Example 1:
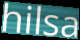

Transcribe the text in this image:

hilsa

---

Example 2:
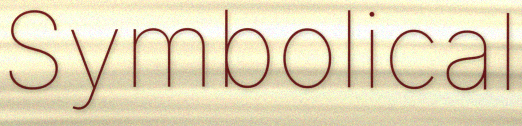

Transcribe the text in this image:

Symbolical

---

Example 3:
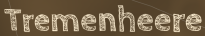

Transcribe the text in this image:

Tremenheere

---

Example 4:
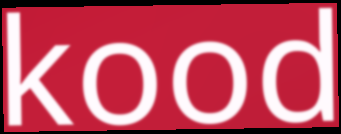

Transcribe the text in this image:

kood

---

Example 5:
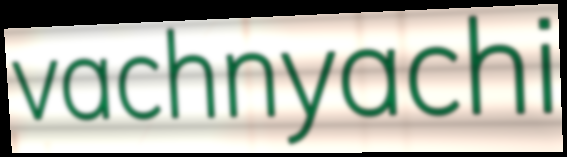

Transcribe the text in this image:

vachnyachi